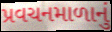
પ્રવચનમાળાનું